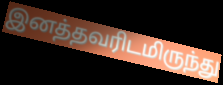
இனத்தவரிடமிருந்து